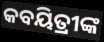
କବୟିତ୍ରୀଙ୍କ